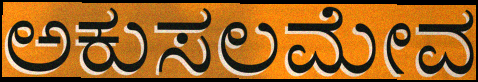
ಅಕುಸಲಮೇವ